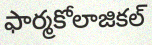
ఫార్మకోలాజికల్